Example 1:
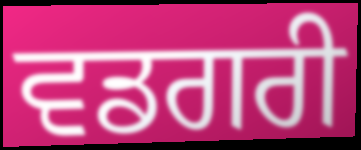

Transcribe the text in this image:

ਵਡਗਰੀ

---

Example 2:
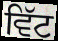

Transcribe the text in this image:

ਵਿੱਟ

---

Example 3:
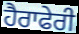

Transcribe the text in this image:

ਹੈਰਾਫੇਰੀ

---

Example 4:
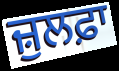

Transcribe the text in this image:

ਜ਼ੁਲਫ਼ਾ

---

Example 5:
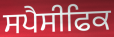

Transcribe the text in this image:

ਸਪੈਸੀਫਿਕ